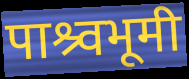
पाश्र्वभूमी